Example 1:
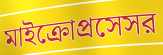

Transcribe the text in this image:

মাইক্রোপ্রসেসর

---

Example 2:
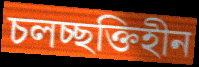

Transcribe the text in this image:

চলচ্ছক্তিহীন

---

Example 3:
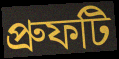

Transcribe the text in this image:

প্রুফটি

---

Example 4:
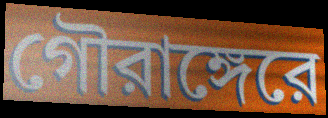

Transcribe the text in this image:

গৌরাঙ্গেরে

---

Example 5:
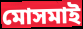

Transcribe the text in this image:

মোসমাই